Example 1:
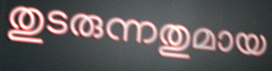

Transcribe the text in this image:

തുടരുന്നതുമായ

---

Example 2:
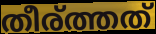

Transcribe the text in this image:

തീര്ത്തത്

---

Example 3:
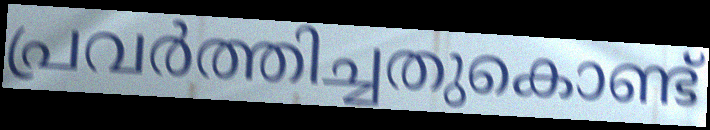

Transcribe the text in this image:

പ്രവർത്തിച്ചതുകൊണ്ട്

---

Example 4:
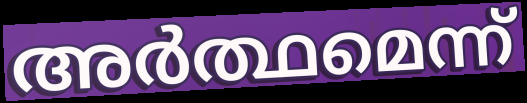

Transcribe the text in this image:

അർത്ഥമെന്ന്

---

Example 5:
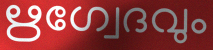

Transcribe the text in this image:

ഋഗ്വേദവും